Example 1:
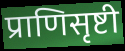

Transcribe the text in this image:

प्राणिसृष्टी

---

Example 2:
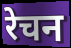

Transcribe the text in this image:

रेचन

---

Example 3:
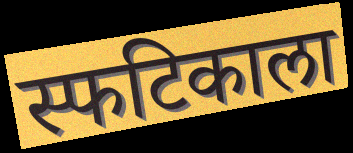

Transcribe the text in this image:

स्फटिकाला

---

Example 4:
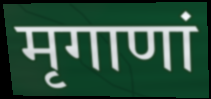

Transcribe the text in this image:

मृगाणां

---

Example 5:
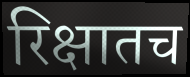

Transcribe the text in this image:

रिक्षातच